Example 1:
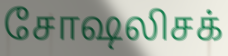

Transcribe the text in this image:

சோஷலிசக்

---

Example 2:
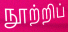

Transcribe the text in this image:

நூற்றிப்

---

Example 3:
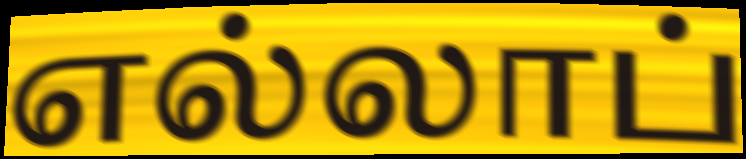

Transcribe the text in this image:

எல்லாப்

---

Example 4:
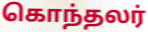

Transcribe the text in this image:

கொந்தலர்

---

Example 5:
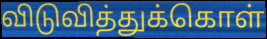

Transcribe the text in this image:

விடுவித்துக்கொள்